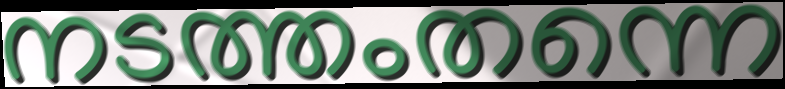
നടത്തംതന്നെ